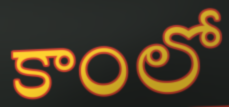
కాంలో